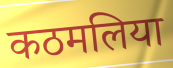
कठमलिया